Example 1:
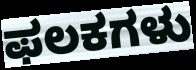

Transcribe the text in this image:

ಫಲಕಗಳು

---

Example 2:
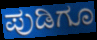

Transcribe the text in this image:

ಪುಡಿಗೂ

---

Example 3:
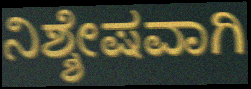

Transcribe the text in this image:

ನಿಶ್ಶೇಷವಾಗಿ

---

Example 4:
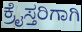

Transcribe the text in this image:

ಕ್ರೈಸ್ತರಿಗಾಗಿ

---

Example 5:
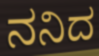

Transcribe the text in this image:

ನನಿದ